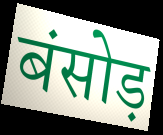
बंसोड़